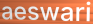
aeswari